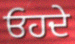
ਓਹਦੇ